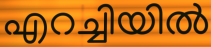
എറച്ചിയിൽ